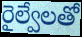
రైల్వేలతో